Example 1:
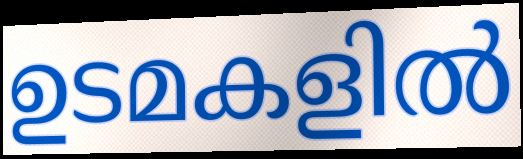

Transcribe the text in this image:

ഉടമകളിൽ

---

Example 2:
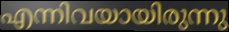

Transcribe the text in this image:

എന്നിവയായിരുന്നു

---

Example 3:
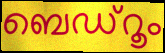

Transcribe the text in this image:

ബെഡ്റൂം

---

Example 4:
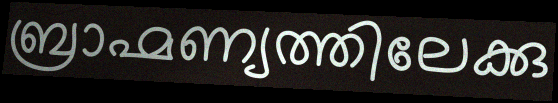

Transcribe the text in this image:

ബ്രാഹ്മണ്യത്തിലേക്കു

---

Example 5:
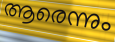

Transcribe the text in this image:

ആരെന്നും